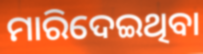
ମାରିଦେଇଥିବା